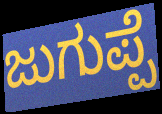
ಜುಗುಪ್ಪೆ